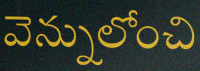
వెన్నులోంచి